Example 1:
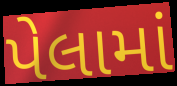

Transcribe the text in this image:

પેલામાં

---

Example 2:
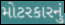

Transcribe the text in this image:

મોટરકારનું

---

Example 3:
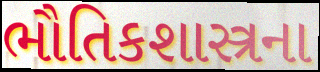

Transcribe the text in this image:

ભૌતિકશાસ્ત્રના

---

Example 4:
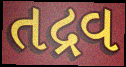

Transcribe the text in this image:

તદ્રવ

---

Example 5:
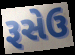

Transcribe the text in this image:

રૂસેઉ